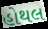
હોથલ